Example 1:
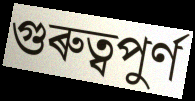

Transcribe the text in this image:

গুৰুত্বপুৰ্ণ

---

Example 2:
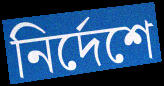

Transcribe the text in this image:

নিৰ্দেশে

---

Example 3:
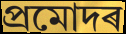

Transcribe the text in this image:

প্ৰমোদৰ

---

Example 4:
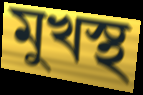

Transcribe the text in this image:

মুখস্থ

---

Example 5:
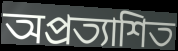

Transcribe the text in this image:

অপ্ৰত্যাশিত